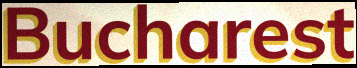
Bucharest